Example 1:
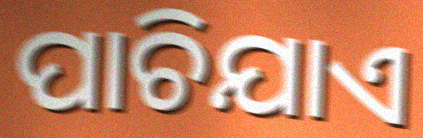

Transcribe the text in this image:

ପାଚିଯାଏ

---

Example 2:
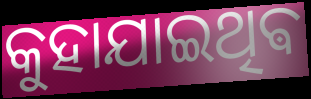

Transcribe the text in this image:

କୁହାଯାଇଥିଵ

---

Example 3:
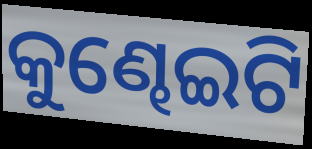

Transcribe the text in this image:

କୁଣ୍ଢେଇଟି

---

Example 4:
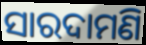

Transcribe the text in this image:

ସାରଦାମଣି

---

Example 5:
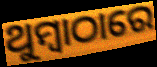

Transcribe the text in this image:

ଥୁମ୍ବାଠାରେ